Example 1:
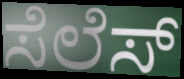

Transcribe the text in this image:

ಸೆಲೆಸ್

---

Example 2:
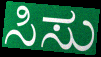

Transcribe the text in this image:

ಸಿಸು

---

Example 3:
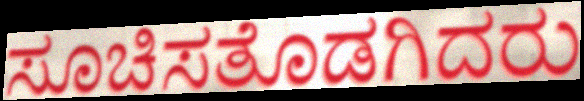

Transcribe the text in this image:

ಸೂಚಿಸತೊಡಗಿದರು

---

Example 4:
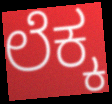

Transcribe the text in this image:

ಲೆಕ್ಕ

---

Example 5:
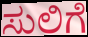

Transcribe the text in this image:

ಸುಲಿಗೆ